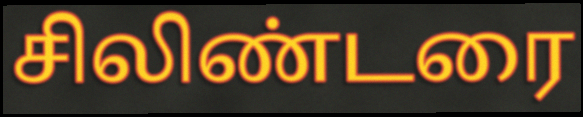
சிலிண்டரை